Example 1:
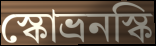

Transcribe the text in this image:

স্কোভ্রনস্কি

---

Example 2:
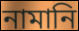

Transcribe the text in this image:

নামানি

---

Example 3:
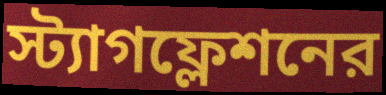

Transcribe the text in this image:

স্ট্যাগফ্লেশনের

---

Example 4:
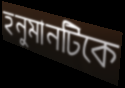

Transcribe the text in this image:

হনুমানটিকে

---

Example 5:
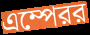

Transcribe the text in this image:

এম্পেরর